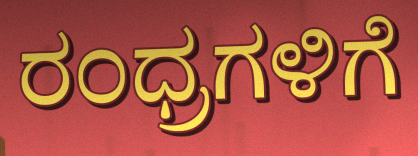
ರಂಧ್ರಗಳಿಗೆ